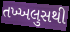
તખ્ખલુસથી